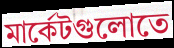
মার্কেটগুলোতে